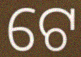
ଟେ